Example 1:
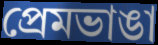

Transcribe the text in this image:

প্রেমভাঙা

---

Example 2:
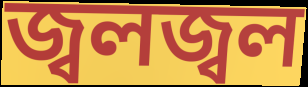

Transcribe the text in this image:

জ্বলজ্বল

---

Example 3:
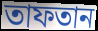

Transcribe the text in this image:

তাফতান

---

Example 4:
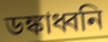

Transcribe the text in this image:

ডঙ্কাধ্বনি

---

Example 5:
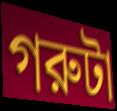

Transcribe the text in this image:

গরুটা